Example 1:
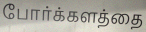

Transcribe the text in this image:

போர்க்களத்தை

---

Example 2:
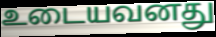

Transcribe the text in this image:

உடையவனது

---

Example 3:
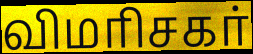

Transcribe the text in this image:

விமரிசகர்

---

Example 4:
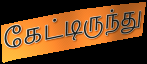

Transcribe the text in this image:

கேட்டிருந்து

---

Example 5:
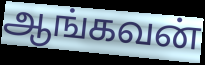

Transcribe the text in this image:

ஆங்கவன்